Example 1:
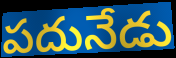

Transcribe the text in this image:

పదునేడు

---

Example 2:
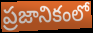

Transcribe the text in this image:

ప్రజానికంలో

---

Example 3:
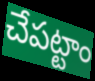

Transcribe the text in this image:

చేపట్టాం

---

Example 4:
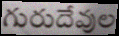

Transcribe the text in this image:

గురుదేవుల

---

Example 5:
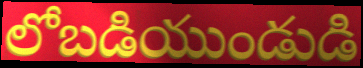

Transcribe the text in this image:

లోబడియుండుడి